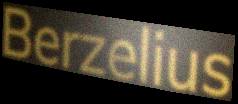
Berzelius